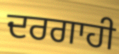
ਦਰਗਾਹੀ